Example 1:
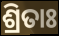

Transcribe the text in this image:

ଶ୍ରିତାଃ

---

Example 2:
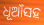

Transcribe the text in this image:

ଧୂଆଁସହ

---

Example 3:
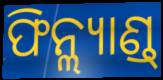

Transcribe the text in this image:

ଫିନ୍ଲ୍ୟାଣ୍ଡ୍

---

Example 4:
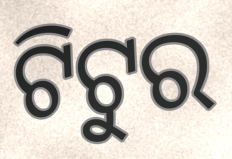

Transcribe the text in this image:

ଟିଟୁର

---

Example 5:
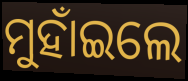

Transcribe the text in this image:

ମୁହାଁଇଲେ